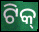
ଟିକ୍